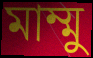
মাম্মু